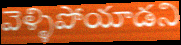
వెళ్ళిపోయాడని